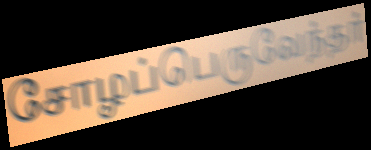
சோழப்பெருவேந்தர்